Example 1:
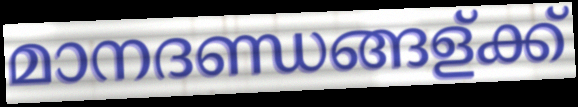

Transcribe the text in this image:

മാനദണ്ഡങ്ങള്ക്ക്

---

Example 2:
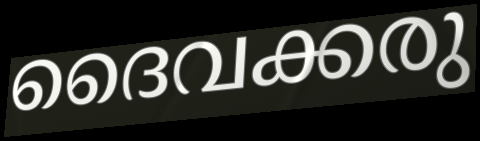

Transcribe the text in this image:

ദൈവക്കരു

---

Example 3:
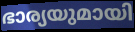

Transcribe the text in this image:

ഭാര്യയുമായി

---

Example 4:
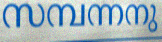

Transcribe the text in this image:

സമ്പന്നനു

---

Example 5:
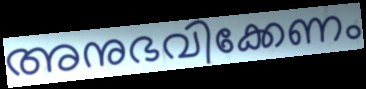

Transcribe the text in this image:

അനുഭവിക്കേണം